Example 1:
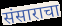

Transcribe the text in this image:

संसाराचा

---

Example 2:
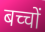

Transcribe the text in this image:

बच्चों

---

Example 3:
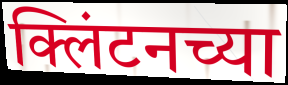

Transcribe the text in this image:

क्लिंटनच्या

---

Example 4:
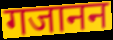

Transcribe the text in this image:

गजानन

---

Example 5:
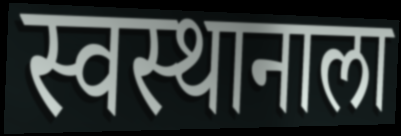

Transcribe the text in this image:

स्वस्थानाला